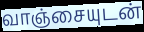
வாஞ்சையுடன்